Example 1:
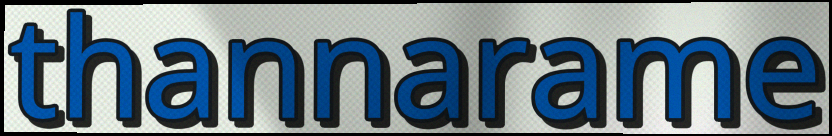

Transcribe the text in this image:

thannarame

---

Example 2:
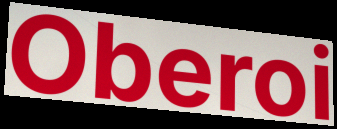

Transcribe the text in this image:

Oberoi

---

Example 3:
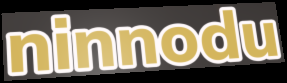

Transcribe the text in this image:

ninnodu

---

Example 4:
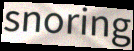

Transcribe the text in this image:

snoring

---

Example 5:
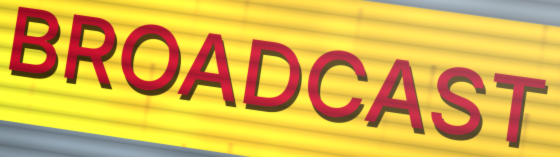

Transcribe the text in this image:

BROADCAST